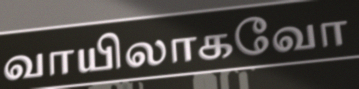
வாயிலாகவோ